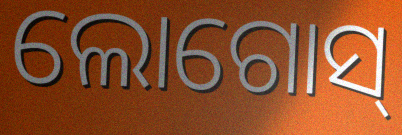
ଲୋଗୋସ୍